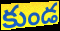
కుండ